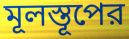
মূলস্তূপের